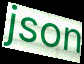
json